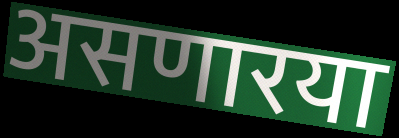
असणारया